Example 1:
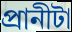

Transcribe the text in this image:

প্রানীটা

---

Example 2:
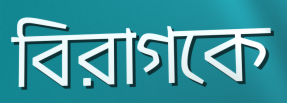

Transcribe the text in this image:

বিরাগকে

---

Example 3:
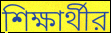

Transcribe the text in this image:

শিক্ষার্থীর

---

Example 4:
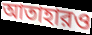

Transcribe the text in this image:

আতাহারও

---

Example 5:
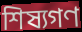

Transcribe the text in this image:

শিষ্যগণ